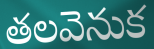
తలవెనుక